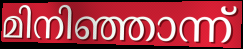
മിനിഞ്ഞാന്ന്